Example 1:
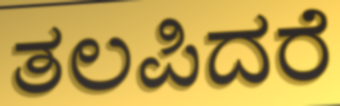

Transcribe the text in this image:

ತಲಪಿದರೆ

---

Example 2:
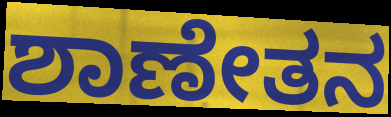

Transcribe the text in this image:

ಶಾಣೇತನ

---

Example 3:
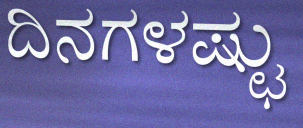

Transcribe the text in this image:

ದಿನಗಳಷ್ಟು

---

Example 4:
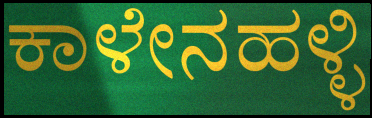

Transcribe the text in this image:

ಕಾಳೇನಹಳ್ಳಿ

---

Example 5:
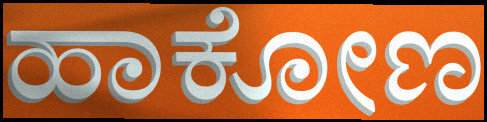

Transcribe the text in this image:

ಹಾಕೋಣ